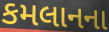
કમલાનના